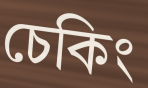
চেকিং